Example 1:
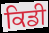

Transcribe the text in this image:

ਕਿਡੀ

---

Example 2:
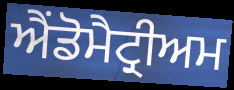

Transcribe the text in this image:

ਐਂਡੋਮੈਟ੍ਰੀਅਮ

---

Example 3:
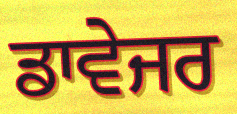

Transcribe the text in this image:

ਡਾਵੇਜਰ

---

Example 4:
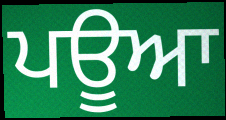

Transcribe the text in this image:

ਪਊਆ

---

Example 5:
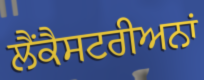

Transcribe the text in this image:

ਲੈਂਕੈਸਟਰੀਅਨਾਂ